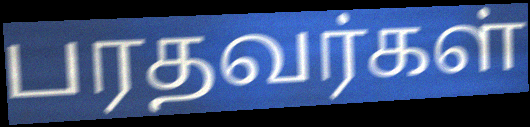
பரதவர்கள்